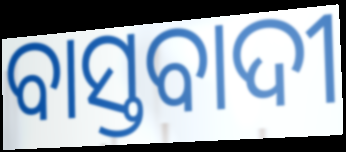
ବାସ୍ତବାଦୀ